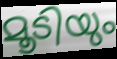
മൂടിയും